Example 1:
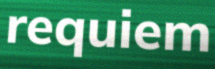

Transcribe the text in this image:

requiem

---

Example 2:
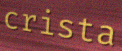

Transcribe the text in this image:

crista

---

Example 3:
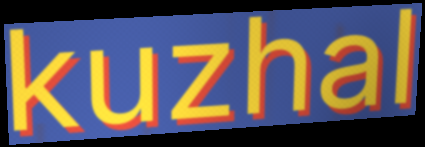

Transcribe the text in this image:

kuzhal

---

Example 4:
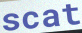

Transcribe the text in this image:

scat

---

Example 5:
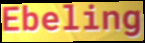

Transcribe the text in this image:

Ebeling